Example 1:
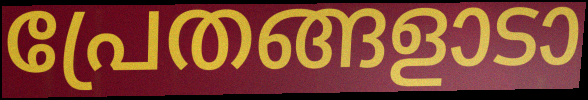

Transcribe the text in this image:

പ്രേതങ്ങളാടാ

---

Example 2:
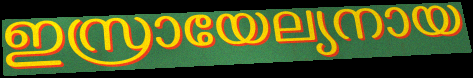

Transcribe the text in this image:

ഇസ്രായേല്യനായ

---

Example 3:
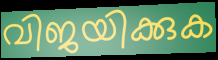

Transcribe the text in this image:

വിജയിക്കുക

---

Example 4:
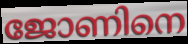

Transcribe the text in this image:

ജോണിനെ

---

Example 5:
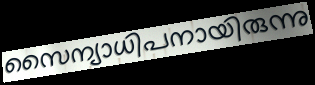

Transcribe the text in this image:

സൈന്യാധിപനായിരുന്നു